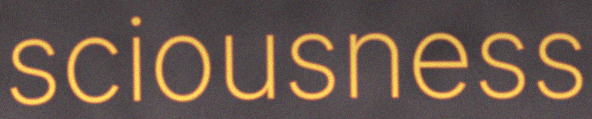
sciousness